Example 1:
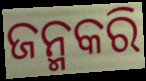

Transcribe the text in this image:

ଜନ୍ମକରି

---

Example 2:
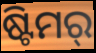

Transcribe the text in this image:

ଷ୍ଟିମର୍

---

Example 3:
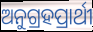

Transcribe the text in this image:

ଅନୁଗ୍ରହପ୍ରାର୍ଥୀ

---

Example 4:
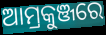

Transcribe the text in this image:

ଆମ୍ରକୁଞ୍ଜରେ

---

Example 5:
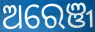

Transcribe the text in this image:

ଅରେଞ୍ଜ